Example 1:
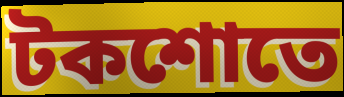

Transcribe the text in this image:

টকশোতে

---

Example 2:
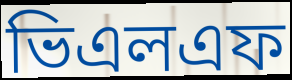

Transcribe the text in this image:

ভিএলএফ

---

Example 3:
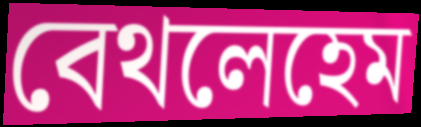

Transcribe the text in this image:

বেথলেহেম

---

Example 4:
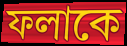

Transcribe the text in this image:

ফলাকে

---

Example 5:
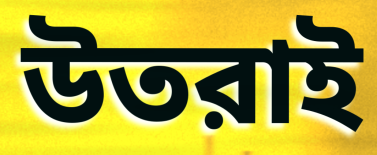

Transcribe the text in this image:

উতরাই